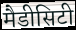
मैडीसिटी